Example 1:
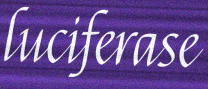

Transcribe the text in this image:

luciferase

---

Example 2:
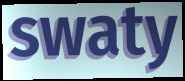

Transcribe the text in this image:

swaty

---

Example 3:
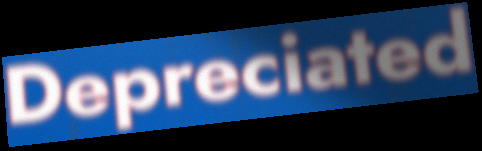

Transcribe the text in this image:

Depreciated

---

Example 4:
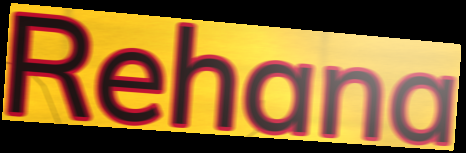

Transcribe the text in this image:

Rehana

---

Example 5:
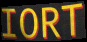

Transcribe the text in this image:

IORT